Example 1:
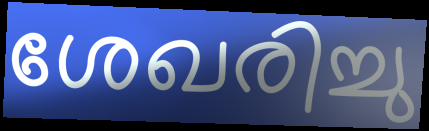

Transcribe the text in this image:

ശേഖരിച്ചു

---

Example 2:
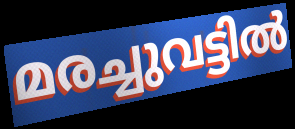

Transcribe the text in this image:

മരച്ചുവട്ടിൽ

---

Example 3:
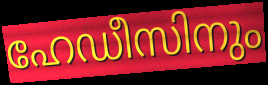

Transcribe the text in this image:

ഹേഡീസിനും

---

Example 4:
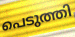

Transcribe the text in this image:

പെടുത്തി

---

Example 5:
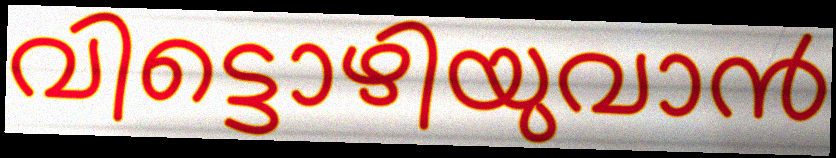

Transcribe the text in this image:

വിട്ടൊഴിയുവാൻ